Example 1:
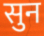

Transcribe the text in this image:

सुन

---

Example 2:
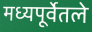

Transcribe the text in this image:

मध्यपूर्वेतले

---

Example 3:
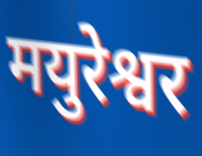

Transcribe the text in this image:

मयुरेश्वर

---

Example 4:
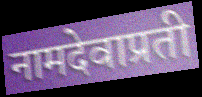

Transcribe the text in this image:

नामदेवाप्रती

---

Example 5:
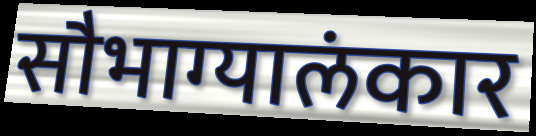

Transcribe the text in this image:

सौभाग्यालंकार